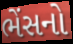
ભેંસનો